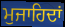
ਮੁਜਾਹਿਦਾਂ